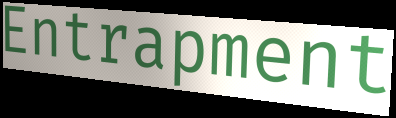
Entrapment